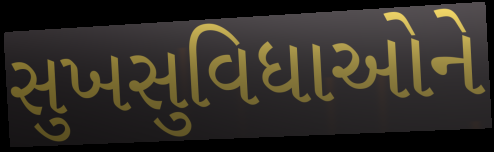
સુખસુવિધાઓને